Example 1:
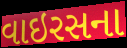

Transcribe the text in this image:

વાઇરસના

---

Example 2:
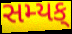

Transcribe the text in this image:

સમ્યક્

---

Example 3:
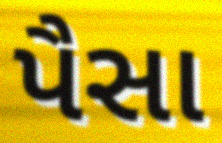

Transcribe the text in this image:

પૈસા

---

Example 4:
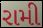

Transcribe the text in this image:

રામી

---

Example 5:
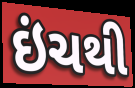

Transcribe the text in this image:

ઇંચથી